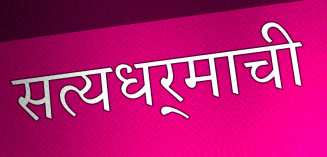
सत्यधर्माची